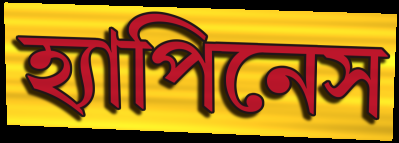
হ্যাপিনেস